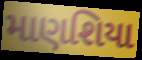
માણશિયા